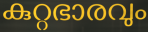
കുറ്റഭാരവും